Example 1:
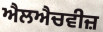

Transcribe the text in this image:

ਐਲਐਚਵੀਜ਼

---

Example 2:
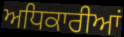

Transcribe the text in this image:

ਅਧਿਕਾਰੀਆਂ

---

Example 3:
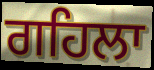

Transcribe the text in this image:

ਗਹਿਲਾ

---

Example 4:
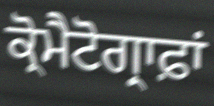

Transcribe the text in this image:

ਕ੍ਰੋਮੈਟੋਗ੍ਰਾਫ਼ਾਂ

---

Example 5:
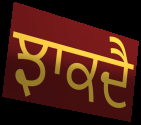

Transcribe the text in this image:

ਝਾਕਦੈ